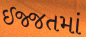
ઈજ્જતમાં